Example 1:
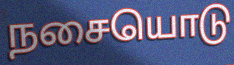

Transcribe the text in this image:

நசையொடு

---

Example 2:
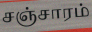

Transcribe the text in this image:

சஞ்சாரம்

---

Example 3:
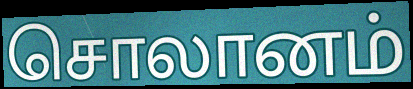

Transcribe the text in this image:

சொலானம்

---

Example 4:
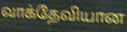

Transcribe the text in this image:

வாக்தேவியான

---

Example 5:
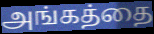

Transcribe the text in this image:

அங்கத்தை